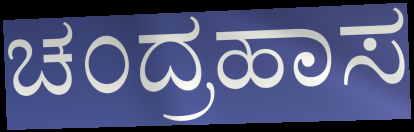
ಚಂದ್ರಹಾಸ